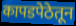
कापडपेठेतून